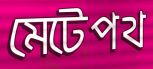
মেটেপথ